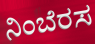
ನಿಂಬೆರಸ